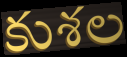
కుశల